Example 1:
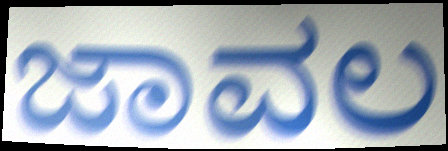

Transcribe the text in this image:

ಜಾವಲ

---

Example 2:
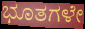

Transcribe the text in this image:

ಭೂತಗಳೇ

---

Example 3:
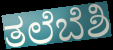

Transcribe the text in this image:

ತಲೆಬೆಶಿ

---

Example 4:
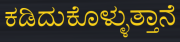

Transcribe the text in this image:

ಕಡಿದುಕೊಳ್ಳುತ್ತಾನೆ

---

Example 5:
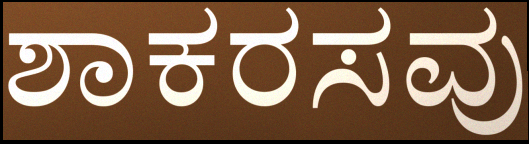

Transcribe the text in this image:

ಶಾಕರಸವು